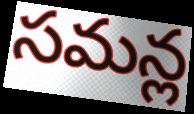
సమన్ల